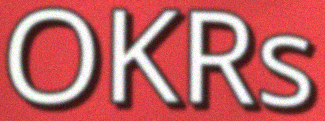
OKRs